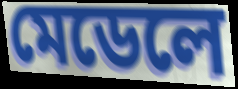
মেডেলে